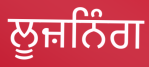
ਲੂਜ਼ਨਿੰਗ